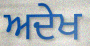
ਅਦੇਖ